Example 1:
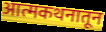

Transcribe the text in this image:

आत्मकथनातून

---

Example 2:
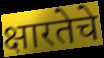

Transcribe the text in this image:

क्षारतेचे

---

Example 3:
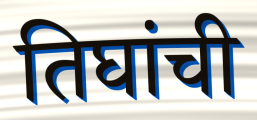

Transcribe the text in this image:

तिघांची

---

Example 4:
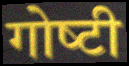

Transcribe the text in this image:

गोष्‍टी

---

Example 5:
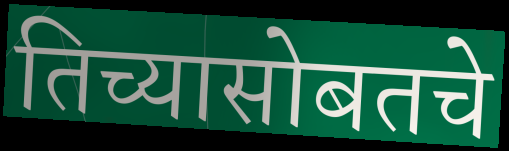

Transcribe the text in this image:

तिच्यासोबतचे